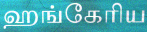
ஹங்கேரிய